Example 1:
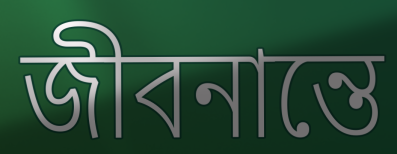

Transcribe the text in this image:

জীবনান্তে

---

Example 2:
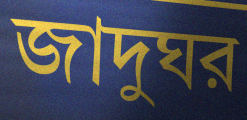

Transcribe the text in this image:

জাদুঘর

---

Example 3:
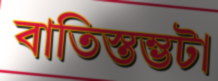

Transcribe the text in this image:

বাতিস্তম্ভটা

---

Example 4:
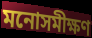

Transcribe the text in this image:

মনোসমীক্ষণ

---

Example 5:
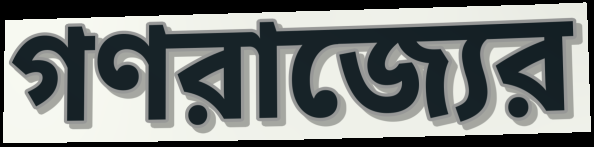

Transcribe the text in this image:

গণরাজ্যের